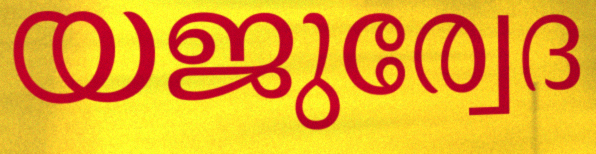
യജുര്വേദ